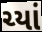
ચ્યાં